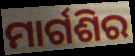
ମାର୍ଗଶିର